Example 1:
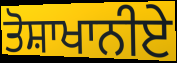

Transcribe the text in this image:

ਤੋਸ਼ਾਖਾਨੀਏ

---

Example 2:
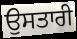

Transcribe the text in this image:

ਉਸਤਾਰੀ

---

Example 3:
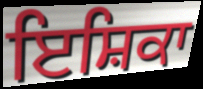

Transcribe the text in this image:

ਇਸ਼ਿਕਾ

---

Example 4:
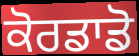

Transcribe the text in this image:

ਕੋਰਡਾਡੋ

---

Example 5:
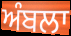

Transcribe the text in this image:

ਅੰਬਲਾ